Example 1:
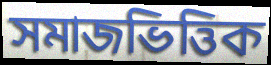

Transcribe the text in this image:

সমাজভিত্তিক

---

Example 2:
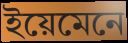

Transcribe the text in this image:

ইয়েমেনে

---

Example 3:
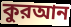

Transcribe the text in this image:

কুরআন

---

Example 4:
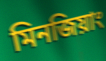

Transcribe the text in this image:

মিনজিয়াং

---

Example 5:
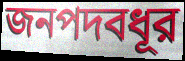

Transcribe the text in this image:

জনপদবধূর